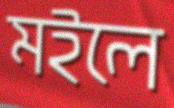
মইলে